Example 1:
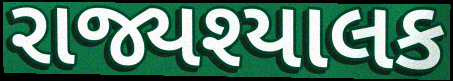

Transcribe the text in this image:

રાજ્યશ્યાલક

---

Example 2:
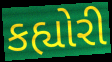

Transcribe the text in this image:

કહ્યોરી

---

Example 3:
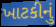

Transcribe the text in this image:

ખાટકીનું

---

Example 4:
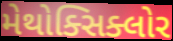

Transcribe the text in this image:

મેથોક્સિક્લોર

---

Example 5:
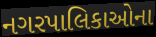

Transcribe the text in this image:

નગરપાલિકાઓના